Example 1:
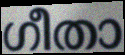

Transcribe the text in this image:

ഗീതാ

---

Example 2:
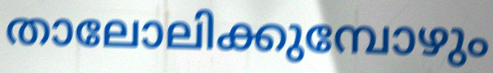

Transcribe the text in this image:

താലോലിക്കുമ്പോഴും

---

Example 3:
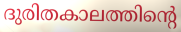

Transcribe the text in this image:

ദുരിതകാലത്തിന്റെ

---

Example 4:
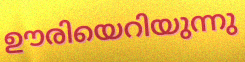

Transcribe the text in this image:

ഊരിയെറിയുന്നു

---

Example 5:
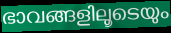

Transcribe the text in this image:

ഭാവങ്ങളിലൂടെയും